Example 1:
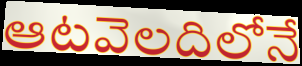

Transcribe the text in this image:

ఆటవెలదిలోనే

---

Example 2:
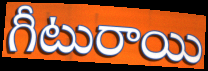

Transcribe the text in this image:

గీటురాయి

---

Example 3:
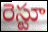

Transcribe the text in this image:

రెస్టూ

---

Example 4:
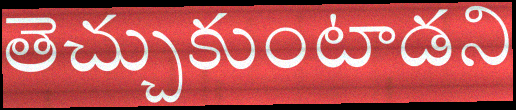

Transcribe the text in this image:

తెచ్చుకుంటాడని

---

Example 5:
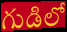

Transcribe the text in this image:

గుడిలో